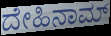
ದೇಹಿನಾಮ್